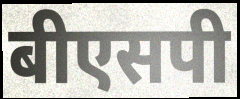
बीएसपी